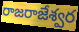
రాజరాజేశ్వర